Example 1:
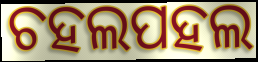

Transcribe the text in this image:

ଚହଲପହଲ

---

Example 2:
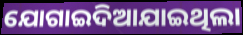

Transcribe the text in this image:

ଯୋଗାଇଦିଆଯାଇଥିଲା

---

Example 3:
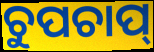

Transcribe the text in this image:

ଚୁପଚାପ୍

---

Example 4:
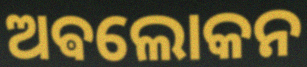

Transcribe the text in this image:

ଅଵଲୋକନ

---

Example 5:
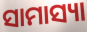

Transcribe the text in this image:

ସାମାସ୍ୟା